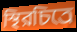
স্থিরচিত্রে